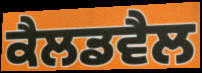
ਕੈਲਡਵੈਲ